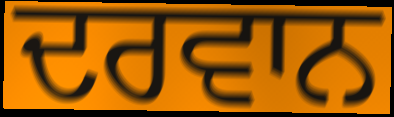
ਦਰਵਾਨ